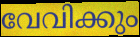
വേവിക്കും